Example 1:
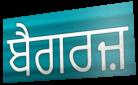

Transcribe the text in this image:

ਬੈਗਰਜ਼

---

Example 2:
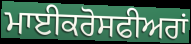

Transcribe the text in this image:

ਮਾਈਕਰੋਸਫੀਅਰਾਂ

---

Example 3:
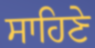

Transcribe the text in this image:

ਸਾਹਿਣੇ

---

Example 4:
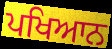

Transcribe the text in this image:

ਪਖਿਆਨ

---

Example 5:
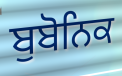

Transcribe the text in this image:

ਬੁਬੋਨਿਕ